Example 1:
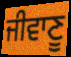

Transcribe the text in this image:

ਜੀਵਾਣੂ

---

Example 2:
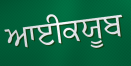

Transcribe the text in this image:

ਆਈਕਯੂਬ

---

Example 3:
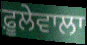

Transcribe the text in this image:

ਫ਼ੂਲੇਵਾਲਾ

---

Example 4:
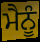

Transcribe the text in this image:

ਮੈਨੂੰ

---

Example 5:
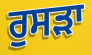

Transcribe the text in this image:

ਰੁਸੜਾ